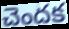
చెందక